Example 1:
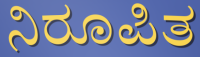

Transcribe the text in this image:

ನಿರೂಪಿತ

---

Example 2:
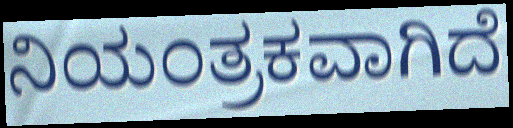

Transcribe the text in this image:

ನಿಯಂತ್ರಕವಾಗಿದೆ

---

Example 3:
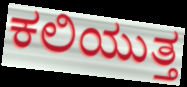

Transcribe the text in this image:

ಕಲಿಯುತ್ತ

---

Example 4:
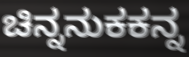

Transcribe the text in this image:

ಚಿನ್ನನುಕಕನ್ನ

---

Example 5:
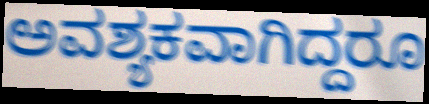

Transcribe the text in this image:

ಅವಶ್ಯಕವಾಗಿದ್ದರೂ